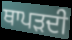
ਥਾਪੜਦੀ